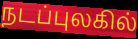
நடப்புலகில்